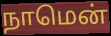
நாமென்